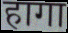
हागा